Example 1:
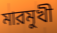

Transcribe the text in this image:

মারমুখী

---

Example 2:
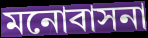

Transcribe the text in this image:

মনোবাসনা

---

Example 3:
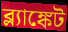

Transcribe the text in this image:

ব্ল্যাঙ্কেট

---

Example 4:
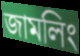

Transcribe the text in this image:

জামলিং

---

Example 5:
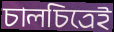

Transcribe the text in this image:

চালচিত্রেই